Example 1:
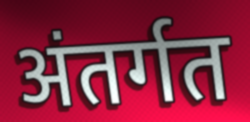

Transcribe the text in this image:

अंतर्गत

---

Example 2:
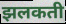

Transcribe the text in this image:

झलकती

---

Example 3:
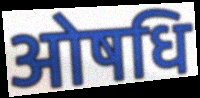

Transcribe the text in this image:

ओषधि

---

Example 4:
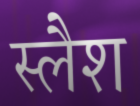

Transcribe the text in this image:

स्लैश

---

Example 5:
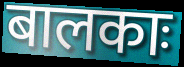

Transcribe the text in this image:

बालकाः